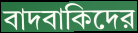
বাদবাকিদের